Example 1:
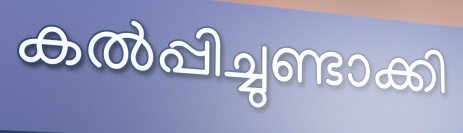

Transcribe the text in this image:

കൽപ്പിച്ചുണ്ടാക്കി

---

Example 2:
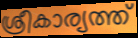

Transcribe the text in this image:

ശ്രീകാര്യത്ത്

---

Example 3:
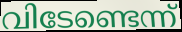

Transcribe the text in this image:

വിടേണ്ടെന്ന്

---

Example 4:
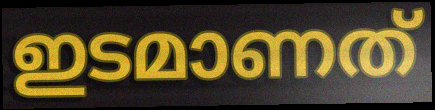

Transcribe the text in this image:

ഇടമാണത്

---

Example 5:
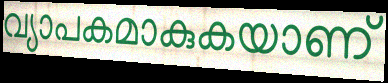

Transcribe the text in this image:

വ്യാപകമാകുകയാണ്